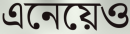
এনেয়েও